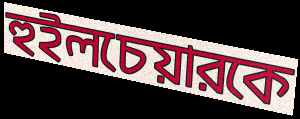
হুইলচেয়ারকে